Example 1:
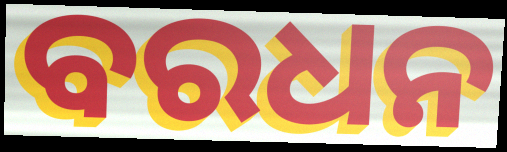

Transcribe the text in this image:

ବରଧନ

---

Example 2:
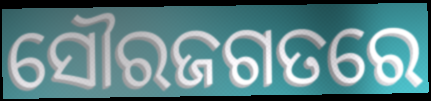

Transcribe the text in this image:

ସୌରଜଗତରେ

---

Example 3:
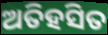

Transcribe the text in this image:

ଅତିହସିତ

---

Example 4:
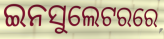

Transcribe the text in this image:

ଇନସୁଲେଟରରେ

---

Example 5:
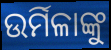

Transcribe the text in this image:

ଉର୍ମିଳାଙ୍କୁ